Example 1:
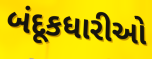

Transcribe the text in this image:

બંદૂકધારીઓ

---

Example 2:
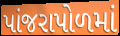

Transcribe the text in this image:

પાંજરાપોળમાં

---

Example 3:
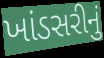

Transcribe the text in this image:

ખાંડસરીનું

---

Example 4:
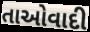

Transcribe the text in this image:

તાઓવાદી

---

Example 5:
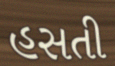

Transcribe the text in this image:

હસતી